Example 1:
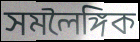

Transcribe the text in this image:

সমলৈঙ্গিক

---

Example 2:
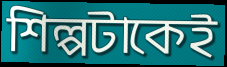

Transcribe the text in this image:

শিল্পটাকেই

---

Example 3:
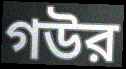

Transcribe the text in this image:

গউর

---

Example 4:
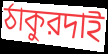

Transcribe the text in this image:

ঠাকুরদাই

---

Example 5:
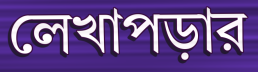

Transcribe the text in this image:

লেখাপড়ার